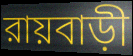
রায়বাড়ী